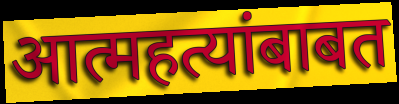
आत्महत्यांबाबत